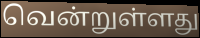
வென்றுள்ளது